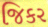
જિકર